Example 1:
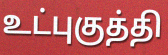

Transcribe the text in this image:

உட்புகுத்தி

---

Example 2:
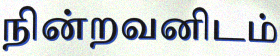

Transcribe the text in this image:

நின்றவனிடம்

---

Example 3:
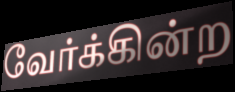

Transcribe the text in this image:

வேர்க்கின்ற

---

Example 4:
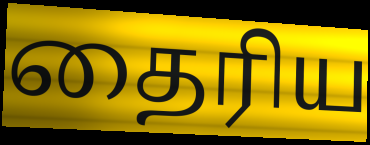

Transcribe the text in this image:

தைரிய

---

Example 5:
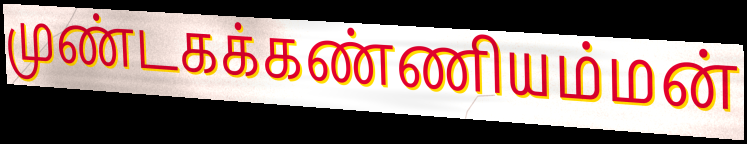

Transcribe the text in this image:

முண்டகக்கண்ணியம்மன்